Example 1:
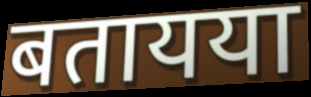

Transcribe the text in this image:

बतायया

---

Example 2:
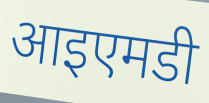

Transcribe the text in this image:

आइएमडी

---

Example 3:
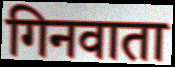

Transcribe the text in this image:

गिनवाता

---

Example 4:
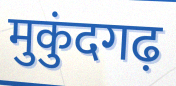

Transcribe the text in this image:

मुकुंदगढ़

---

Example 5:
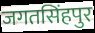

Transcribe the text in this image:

जगतसिंहपुर